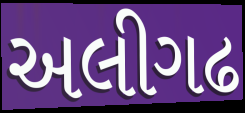
અલીગઢ